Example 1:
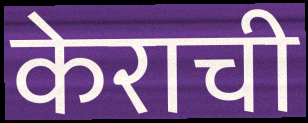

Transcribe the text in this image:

केराची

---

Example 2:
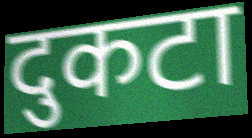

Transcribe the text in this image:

दुकटा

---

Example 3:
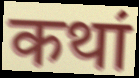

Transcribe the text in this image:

कथां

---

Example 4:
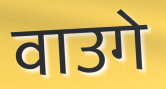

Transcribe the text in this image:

वाउगे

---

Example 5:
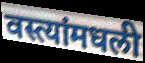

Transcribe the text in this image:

वस्त्यांमधली